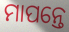
ମାପନ୍ତେ